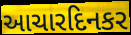
આચારદિનકર